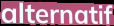
alternatif